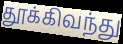
தூக்கிவந்து